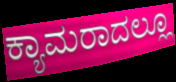
ಕ್ಯಾಮರಾದಲ್ಲೂ